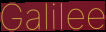
Galilee